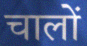
चालों